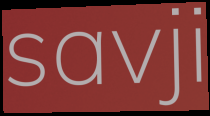
savji